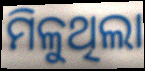
ମିଳୁଥିଲା